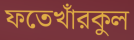
ফতেখাঁরকুল